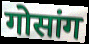
गोसांग